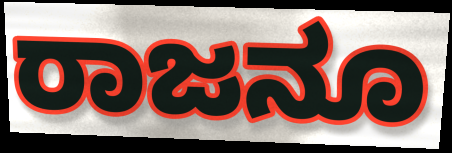
ರಾಜನೂ